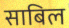
साबिल